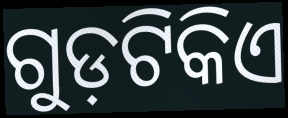
ଗୁଡ଼ଟିକିଏ